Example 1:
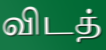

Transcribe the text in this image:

விடத்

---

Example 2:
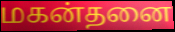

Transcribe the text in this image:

மகன்தனை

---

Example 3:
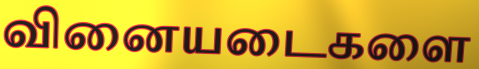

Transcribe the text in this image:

வினையடைகளை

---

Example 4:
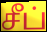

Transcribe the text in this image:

சீப்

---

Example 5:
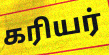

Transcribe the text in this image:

கரியர்